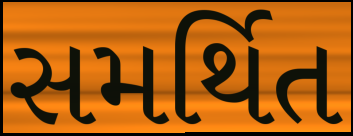
સમર્થિત